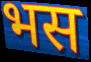
भस